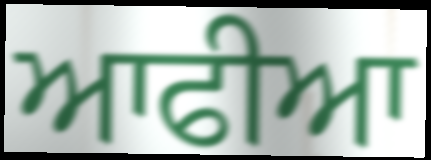
ਆਫੀਆ